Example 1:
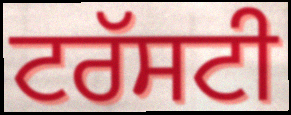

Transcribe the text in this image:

ਟਰੱਸਟੀ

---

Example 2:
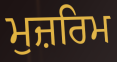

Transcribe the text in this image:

ਮੁਜ਼ਰਿਮ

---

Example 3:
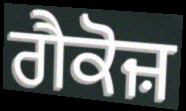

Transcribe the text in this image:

ਗੈਕੋਜ਼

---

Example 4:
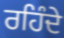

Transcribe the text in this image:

ਰਹਿੰਦੇ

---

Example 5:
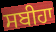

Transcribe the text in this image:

ਸਬੀਹਾ